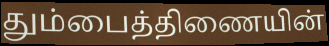
தும்பைத்திணையின்